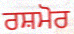
ਰਸ਼ਮੋਰ